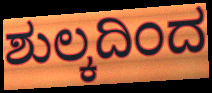
ಶುಲ್ಕದಿಂದ